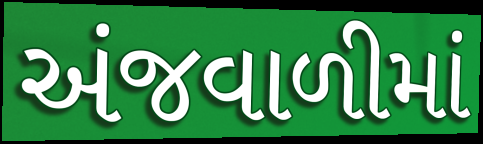
અંજવાળીમાં